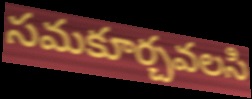
సమకూర్చవలసి